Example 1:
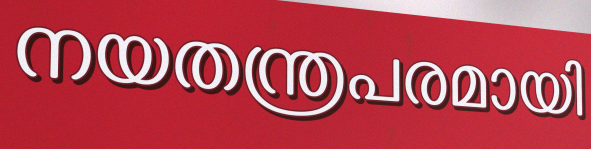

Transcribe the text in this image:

നയതന്ത്രപരമായി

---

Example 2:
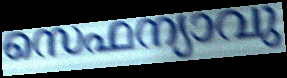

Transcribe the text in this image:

സെഫന്യാവു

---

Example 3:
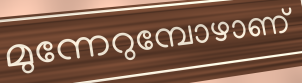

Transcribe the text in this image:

മുന്നേറുമ്പോഴാണ്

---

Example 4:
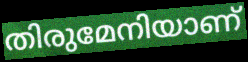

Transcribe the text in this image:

തിരുമേനിയാണ്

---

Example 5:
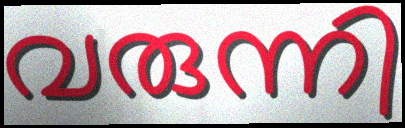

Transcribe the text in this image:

വരുന്നി